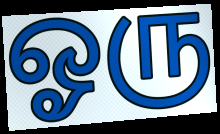
ஓரு